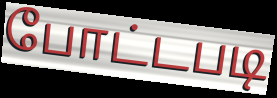
போட்டபடி